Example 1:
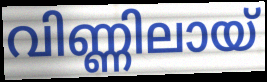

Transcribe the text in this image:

വിണ്ണിലായ്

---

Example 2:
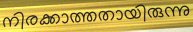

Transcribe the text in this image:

നിരക്കാത്തതായിരുന്നു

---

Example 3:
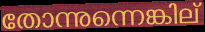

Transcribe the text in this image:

തോന്നുന്നെങ്കില്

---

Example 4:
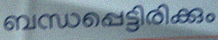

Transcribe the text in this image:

ബന്ധപ്പെട്ടിരിക്കും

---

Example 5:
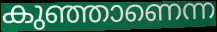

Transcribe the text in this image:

കുഞ്ഞാണെന്ന